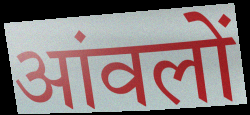
आंवलों